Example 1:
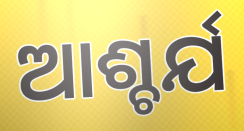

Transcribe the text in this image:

ଆଶ୍ଚର୍ଯ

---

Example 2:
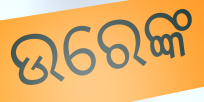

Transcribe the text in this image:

ଉରେଙ୍କ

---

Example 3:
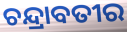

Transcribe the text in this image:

ଚନ୍ଦ୍ରାବତୀର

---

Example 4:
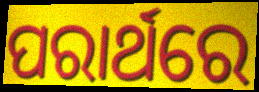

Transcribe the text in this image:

ପରାର୍ଥରେ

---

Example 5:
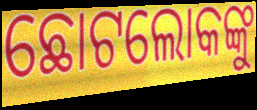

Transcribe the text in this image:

ଛୋଟଲୋକଙ୍କୁ